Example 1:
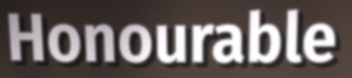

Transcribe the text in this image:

Honourable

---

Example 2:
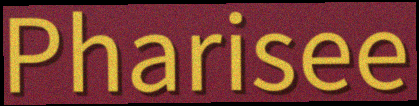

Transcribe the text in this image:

Pharisee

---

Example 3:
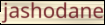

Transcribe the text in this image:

jashodane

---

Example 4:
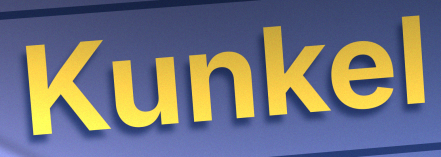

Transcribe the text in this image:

Kunkel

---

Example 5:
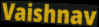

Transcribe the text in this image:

Vaishnav